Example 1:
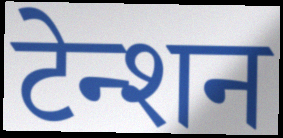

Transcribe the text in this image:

टेन्शन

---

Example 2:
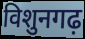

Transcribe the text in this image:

विशुनगढ़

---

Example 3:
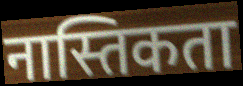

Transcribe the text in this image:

नास्तिकता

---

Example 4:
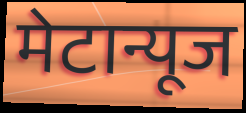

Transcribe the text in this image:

मेटान्यूज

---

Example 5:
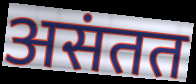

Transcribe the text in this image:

असंतत